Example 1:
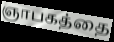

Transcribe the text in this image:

ஞாபகத்தை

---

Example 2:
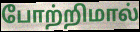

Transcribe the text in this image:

போற்றிமால்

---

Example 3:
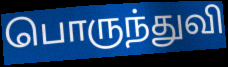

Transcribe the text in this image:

பொருந்துவி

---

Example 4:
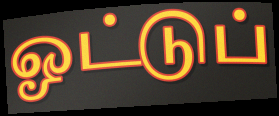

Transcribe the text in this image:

ஓட்டுப்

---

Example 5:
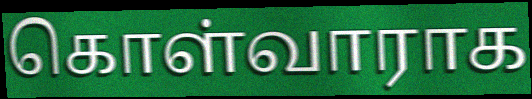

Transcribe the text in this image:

கொள்வாராக